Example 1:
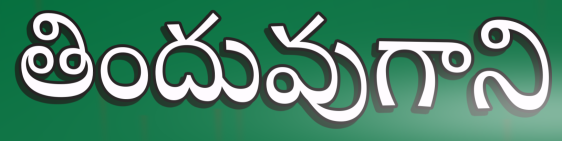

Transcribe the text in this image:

తిందువుగాని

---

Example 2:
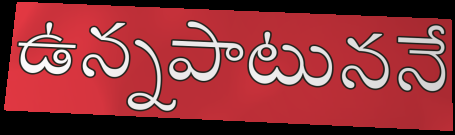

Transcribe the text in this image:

ఉన్నపాటుననే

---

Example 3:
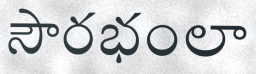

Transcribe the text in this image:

సౌరభంలా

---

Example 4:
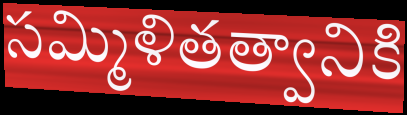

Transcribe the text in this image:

సమ్మిళితత్వానికి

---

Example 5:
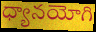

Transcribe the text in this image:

ధ్యానయోగి